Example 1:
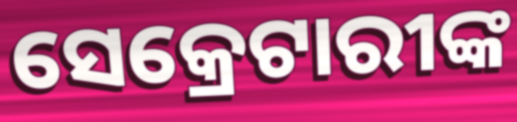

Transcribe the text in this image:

ସେକ୍ରେଟାରୀଙ୍କ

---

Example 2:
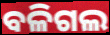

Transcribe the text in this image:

ବଳିଗଲ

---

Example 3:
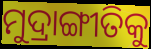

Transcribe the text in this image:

ମୁଦ୍ରାଙ୍ଗୀତିକୁ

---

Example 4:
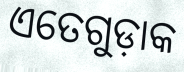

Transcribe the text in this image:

ଏତେଗୁଡ଼ାକ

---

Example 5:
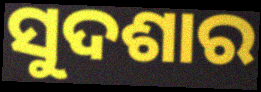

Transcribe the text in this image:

ସୁଦଶାର